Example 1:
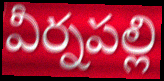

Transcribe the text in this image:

వీర్నపల్లి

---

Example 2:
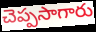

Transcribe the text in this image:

చెప్పసాగారు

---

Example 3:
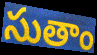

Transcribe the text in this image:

సుతాం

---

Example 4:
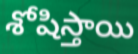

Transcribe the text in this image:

శోషిస్తాయి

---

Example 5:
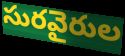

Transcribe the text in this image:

సురవైరుల